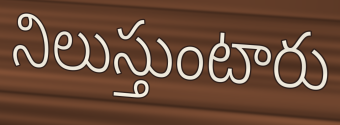
నిలుస్తుంటారు